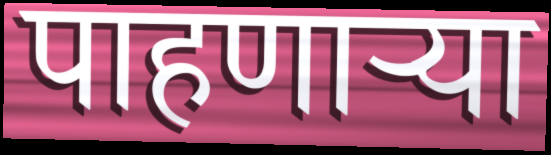
पाहणाऱ्या